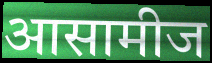
आसामीज